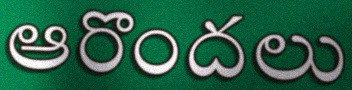
ఆరొందలు